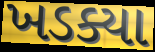
ખડક્યા